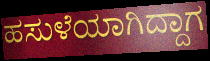
ಹಸುಳೆಯಾಗಿದ್ದಾಗ